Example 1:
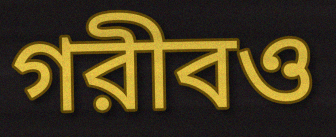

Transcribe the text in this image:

গরীবও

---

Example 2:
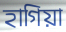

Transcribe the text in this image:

হাগিয়া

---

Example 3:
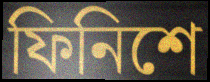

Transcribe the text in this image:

ফিনিশে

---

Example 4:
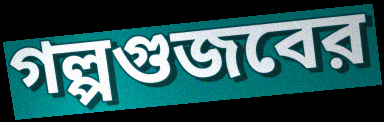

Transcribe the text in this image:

গল্পগুজবের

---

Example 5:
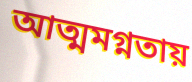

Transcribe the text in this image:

আত্মমগ্নতায়